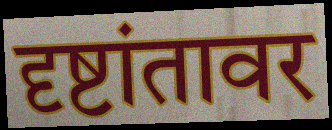
दृष्टांतावर